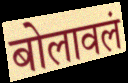
बोलावलं